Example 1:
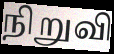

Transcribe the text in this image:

நிறுவி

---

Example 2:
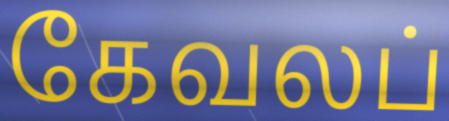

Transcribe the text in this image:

கேவலப்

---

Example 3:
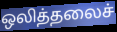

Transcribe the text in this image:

ஒலித்தலைச்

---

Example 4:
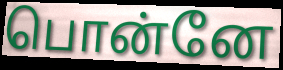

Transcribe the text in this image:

பொன்னே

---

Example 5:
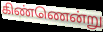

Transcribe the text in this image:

கிண்ணென்று